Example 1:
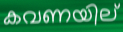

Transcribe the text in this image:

കവണയില്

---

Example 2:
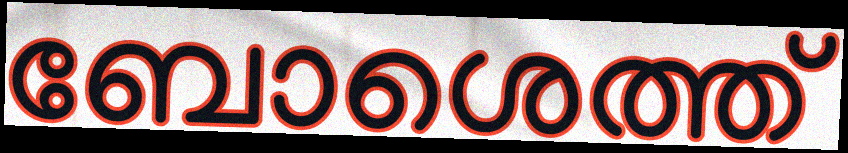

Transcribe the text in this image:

ബോശെത്ത്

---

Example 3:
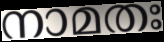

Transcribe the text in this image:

നാമതഃ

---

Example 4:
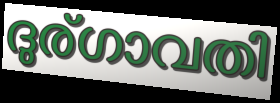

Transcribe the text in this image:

ദുര്ഗാവതി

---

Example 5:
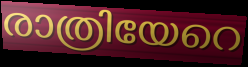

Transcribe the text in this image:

രാത്രിയേറെ